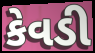
કેવડી